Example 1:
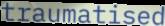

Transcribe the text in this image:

traumatised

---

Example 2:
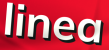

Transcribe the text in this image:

linea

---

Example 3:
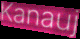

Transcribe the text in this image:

Kanauj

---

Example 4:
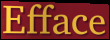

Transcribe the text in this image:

Efface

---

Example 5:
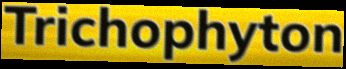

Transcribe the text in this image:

Trichophyton